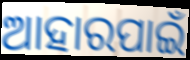
ଆହାରପାଇଁ